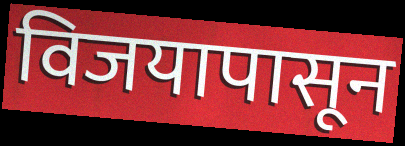
विजयापासून